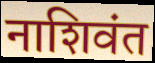
नाशिवंत